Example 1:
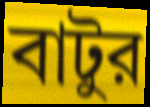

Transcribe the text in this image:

বাটুর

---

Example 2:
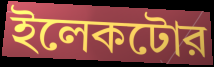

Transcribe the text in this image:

ইলেকটোর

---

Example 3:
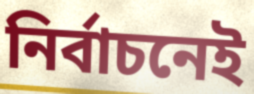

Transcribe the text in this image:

নির্বাচনেই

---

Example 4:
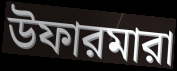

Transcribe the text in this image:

উফারমারা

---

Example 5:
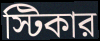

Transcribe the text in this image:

স্টিকার